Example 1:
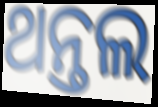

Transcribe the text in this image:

ଥନ୍ତଲ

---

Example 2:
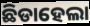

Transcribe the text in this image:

ଛିଡାହେଲା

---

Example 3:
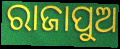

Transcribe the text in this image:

ରାଜାପୁଅ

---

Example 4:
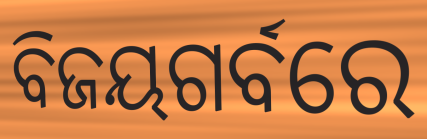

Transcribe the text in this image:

ବିଜୟଗର୍ବରେ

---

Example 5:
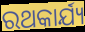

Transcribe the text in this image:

ରଥକାର୍ଯ୍ୟ